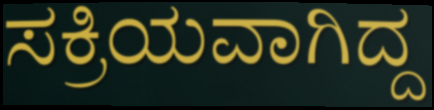
ಸಕ್ರಿಯವಾಗಿದ್ದ